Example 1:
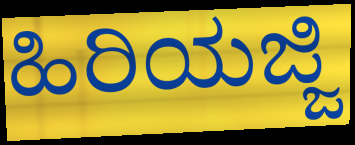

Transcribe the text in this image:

ಹಿರಿಯಜ್ಜಿ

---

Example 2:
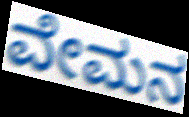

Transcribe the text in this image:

ವೇಮನ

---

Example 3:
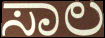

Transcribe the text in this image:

ಸಾಲ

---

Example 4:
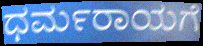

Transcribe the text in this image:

ಧರ್ಮರಾಯಗೆ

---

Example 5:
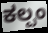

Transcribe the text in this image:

ಕಲ್ಪಂ